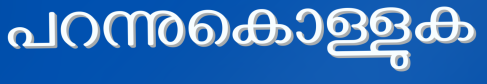
പറന്നുകൊള്ളുക